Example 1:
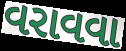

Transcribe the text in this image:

વરાવવા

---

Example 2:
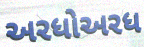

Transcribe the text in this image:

અરધોઅરધ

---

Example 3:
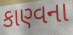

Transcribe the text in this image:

કાણ્વના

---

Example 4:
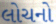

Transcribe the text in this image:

લોચનો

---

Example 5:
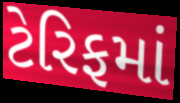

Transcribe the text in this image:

ટેરિફમાં